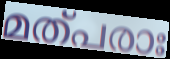
മത്പരാഃ